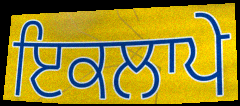
ਇਕਲਾਪੇ